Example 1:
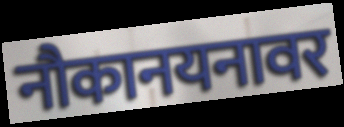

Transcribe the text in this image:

नौकानयनावर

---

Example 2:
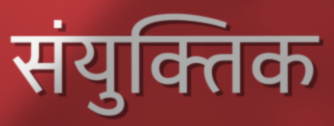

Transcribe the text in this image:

संयुक्‍तिक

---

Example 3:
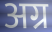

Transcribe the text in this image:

अग्र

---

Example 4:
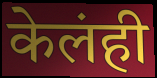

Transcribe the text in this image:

केलंही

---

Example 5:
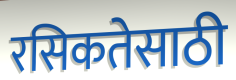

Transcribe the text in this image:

रसिकतेसाठी